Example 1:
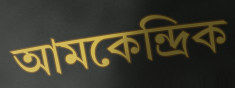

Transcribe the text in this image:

আমকেন্দ্রিক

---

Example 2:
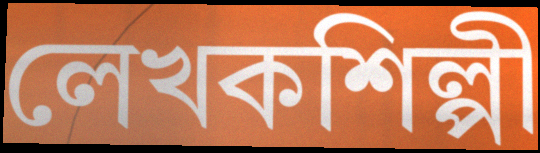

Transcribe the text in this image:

লেখকশিল্পী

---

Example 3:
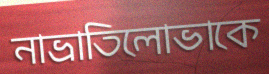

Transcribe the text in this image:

নাভ্রাতিলোভাকে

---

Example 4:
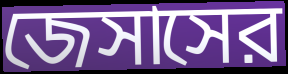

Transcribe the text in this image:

জেসাসের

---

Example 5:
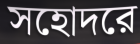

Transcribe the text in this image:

সহোদরে